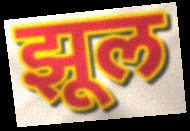
झूल